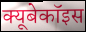
क्यूबेकॉइस